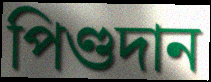
পিণ্ডদান